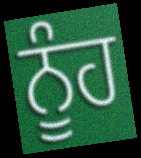
ਨੂੰਹ